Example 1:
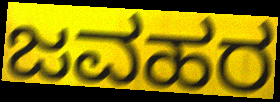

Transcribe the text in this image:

ಜವಹರ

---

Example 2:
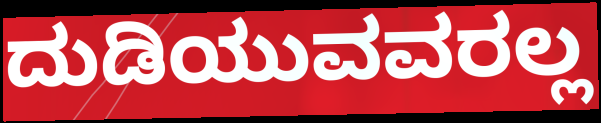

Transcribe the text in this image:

ದುಡಿಯುವವರಲ್ಲ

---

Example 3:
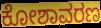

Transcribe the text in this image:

ಕೋಶಾವರಣ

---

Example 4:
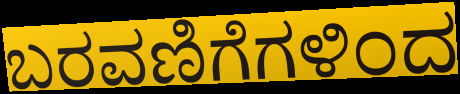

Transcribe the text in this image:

ಬರವಣಿಗೆಗಳಿಂದ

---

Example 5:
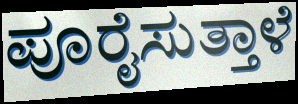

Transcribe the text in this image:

ಪೂರೈಸುತ್ತಾಳೆ